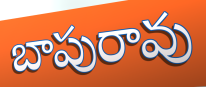
బాపురావు